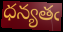
ధన్యతఁ